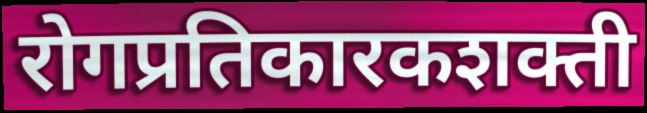
रोगप्रतिकारकशक्ती